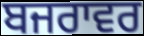
ਬਜਰਾਵਰ